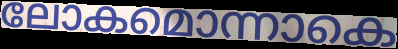
ലോകമൊന്നാകെ